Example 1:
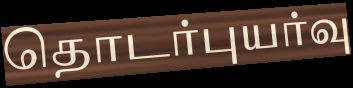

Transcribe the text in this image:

தொடர்புயர்வு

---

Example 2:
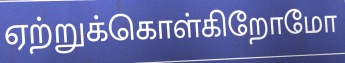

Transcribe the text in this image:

ஏற்றுக்கொள்கிறோமோ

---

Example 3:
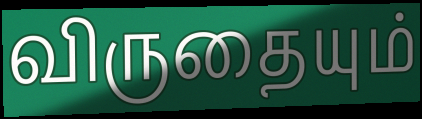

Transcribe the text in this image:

விருதையும்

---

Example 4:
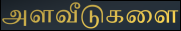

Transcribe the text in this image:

அளவீடுகளை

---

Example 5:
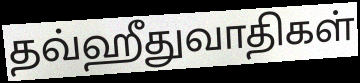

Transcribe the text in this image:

தவ்ஹீதுவாதிகள்